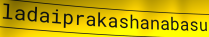
ladaiprakashanabasu